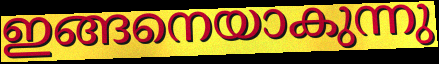
ഇങ്ങനെയാകുന്നു